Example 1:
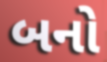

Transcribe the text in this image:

બનો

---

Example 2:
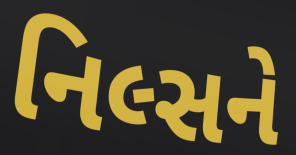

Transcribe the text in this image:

નિલ્સને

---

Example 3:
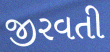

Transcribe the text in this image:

જીરવતી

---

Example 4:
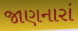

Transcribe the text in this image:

જાણનારાં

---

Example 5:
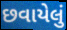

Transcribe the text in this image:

છવાયેલું